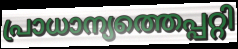
പ്രാധാന്യത്തെപ്പറ്റി